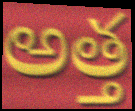
అత్త